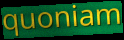
quoniam